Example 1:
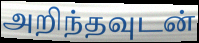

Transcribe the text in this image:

அறிந்தவுடன்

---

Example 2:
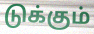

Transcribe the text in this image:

டுக்கும்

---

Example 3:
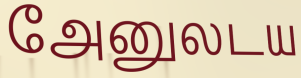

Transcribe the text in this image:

அேனுலடய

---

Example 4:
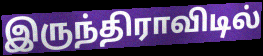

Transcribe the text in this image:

இருந்திராவிடில்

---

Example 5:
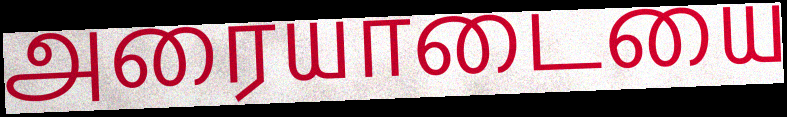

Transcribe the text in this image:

அரையாடையை